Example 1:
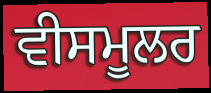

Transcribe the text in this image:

ਵੀਸਮੂਲਰ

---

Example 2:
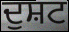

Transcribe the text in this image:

ਦੁਸ਼ਟ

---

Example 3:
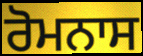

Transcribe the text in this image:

ਰੋਮਨਾਸ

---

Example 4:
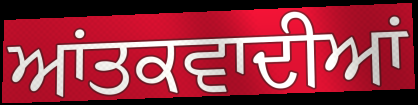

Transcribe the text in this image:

ਆਂਤਕਵਾਦੀਆਂ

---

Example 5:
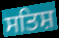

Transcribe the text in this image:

ਸਤਿਸ਼